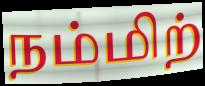
நம்மிற்